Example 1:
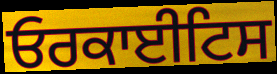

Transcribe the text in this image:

ਓਰਕਾਈਟਿਸ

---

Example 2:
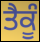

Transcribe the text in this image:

ਤੈਕੂੰ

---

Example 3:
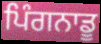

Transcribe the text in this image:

ਪਿੰਗਨਾਡੂ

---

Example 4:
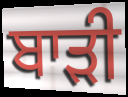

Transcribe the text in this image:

ਬਾੜੀ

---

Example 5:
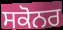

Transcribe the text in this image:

ਸਕੋਨਰ